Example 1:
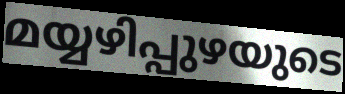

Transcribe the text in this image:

മയ്യഴിപ്പുഴയുടെ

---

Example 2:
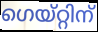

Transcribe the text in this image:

ഗെയ്റ്റിന്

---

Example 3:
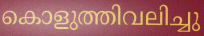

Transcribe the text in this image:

കൊളുത്തിവലിച്ചു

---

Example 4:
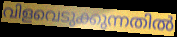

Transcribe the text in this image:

വിളവെടുക്കുന്നതിൽ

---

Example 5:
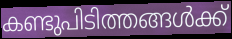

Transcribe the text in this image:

കണ്ടുപിടിത്തങ്ങൾക്ക്